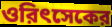
ওরিৎসেকের